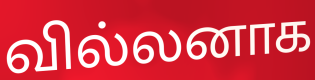
வில்லனாக